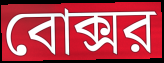
বোক্সর